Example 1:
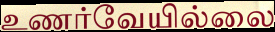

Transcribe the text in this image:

உணர்வேயில்லை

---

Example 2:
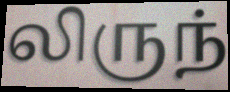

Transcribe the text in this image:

லிருந்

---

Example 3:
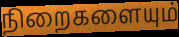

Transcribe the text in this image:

நிறைகளையும்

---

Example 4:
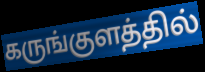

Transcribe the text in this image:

கருங்குளத்தில்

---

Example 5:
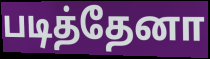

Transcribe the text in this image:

படித்தேனா